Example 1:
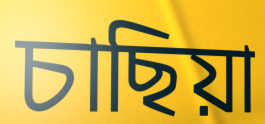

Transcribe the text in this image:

চাছিয়া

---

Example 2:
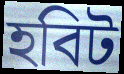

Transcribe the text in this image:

হবিট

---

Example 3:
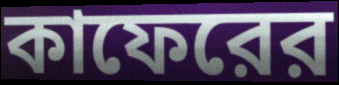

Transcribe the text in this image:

কাফেরের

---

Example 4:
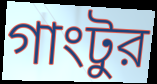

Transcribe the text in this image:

গাংটুর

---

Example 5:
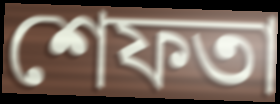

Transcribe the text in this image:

শেফতা